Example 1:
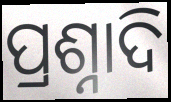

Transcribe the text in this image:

ପ୍ରଶ୍ନାଦି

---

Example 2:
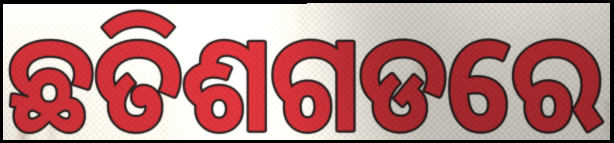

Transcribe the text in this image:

ଛତିଶଗଡରେ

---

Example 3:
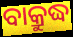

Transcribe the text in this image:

ବାକ୍ରୁଦ୍ଧ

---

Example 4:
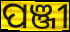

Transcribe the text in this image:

ପଞ୍ଜୀ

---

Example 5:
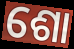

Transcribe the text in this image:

ଶୋ